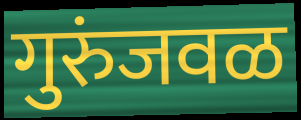
गुरुंजवळ